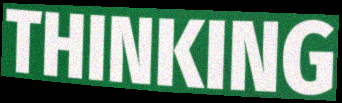
THINKING